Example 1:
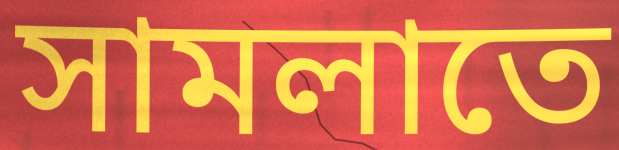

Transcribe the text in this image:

সামলাতে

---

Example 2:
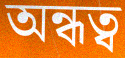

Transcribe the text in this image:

অন্ধত্ব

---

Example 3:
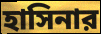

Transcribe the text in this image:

হাসিনার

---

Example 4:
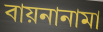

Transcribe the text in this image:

বায়নানামা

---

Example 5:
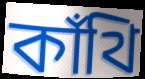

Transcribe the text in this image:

কাঁথি